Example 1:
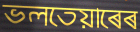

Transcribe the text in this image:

ভলতেয়াৰেৰ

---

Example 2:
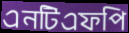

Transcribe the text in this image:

এনটিএফপি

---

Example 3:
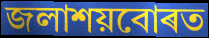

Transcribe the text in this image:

জলাশয়বোৰত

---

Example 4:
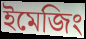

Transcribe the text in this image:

ইমেজিং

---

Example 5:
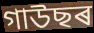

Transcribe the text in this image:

গাউছৰ